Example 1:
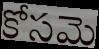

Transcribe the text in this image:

కోసమె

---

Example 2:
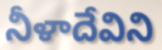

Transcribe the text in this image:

నీళాదేవిని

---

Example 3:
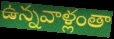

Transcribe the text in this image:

ఉన్నవాళ్లంతా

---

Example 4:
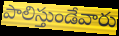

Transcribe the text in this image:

పాలిస్తుండేవారు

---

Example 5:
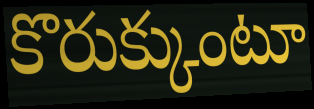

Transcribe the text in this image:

కొరుక్కుంటూ